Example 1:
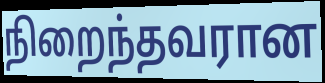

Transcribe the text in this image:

நிறைந்தவரான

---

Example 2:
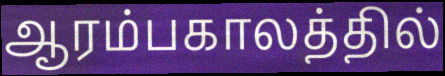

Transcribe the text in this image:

ஆரம்பகாலத்தில்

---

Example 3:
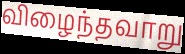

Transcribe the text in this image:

விழைந்தவாறு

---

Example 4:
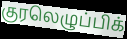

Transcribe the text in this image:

குரலெழுப்பிக்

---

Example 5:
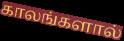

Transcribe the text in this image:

காலங்களால்